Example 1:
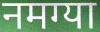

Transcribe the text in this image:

नमग्या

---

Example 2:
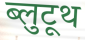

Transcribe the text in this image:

ब्लुटूथ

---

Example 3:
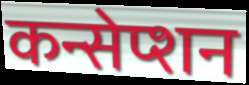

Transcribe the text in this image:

कन्सेप्शन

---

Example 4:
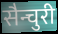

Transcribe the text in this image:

सैन्चुरी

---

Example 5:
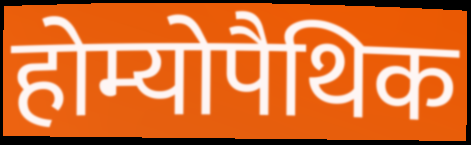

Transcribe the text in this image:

होम्योपैथिक